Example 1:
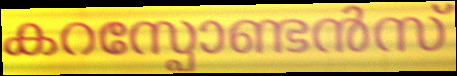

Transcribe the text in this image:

കറസ്പോണ്ടൻസ്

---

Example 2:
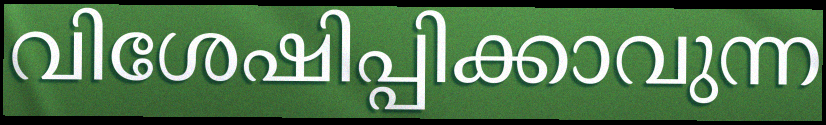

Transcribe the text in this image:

വിശേഷിപ്പിക്കാവുന്ന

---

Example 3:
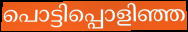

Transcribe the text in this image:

പൊട്ടിപ്പൊളിഞ്ഞ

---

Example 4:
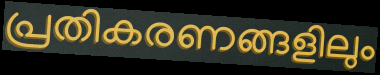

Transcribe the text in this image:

പ്രതികരണങ്ങളിലും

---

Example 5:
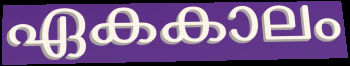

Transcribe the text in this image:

ഏകകാലം